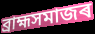
ব্ৰাহ্মসমাজৰ